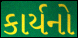
કાર્યનો